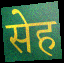
सेह